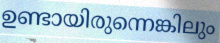
ഉണ്ടായിരുന്നെങ്കിലും